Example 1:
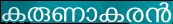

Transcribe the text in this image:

കരുണാകരൻ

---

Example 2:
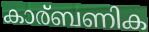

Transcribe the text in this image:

കാര്ബണിക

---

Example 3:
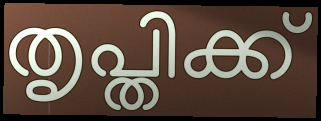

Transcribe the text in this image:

തൃപ്തിക്ക്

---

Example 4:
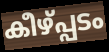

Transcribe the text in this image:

കീഴ്പ്പടം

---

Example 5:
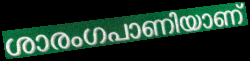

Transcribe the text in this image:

ശാരംഗപാണിയാണ്